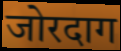
जोरदाग